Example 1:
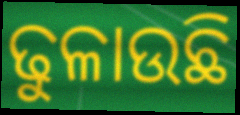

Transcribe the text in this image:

ଢୁଳାଉଛି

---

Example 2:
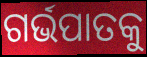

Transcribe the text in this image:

ଗର୍ଭପାତକୁ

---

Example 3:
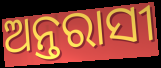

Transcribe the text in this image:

ଅନ୍ତରାସୀ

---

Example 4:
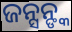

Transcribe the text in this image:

ଜନ୍ସନ୍ଙ୍କ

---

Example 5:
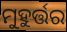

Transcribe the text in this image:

ମୁହୁର୍ତ୍ତର